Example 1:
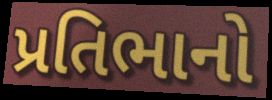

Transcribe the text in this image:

પ્રતિભાનો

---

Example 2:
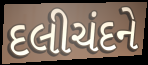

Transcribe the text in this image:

દલીચંદને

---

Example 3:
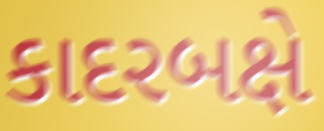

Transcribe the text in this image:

કાદરબક્ષે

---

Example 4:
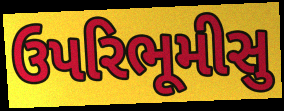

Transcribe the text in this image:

ઉપરિભૂમીસુ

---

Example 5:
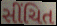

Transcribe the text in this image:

સીંચિત